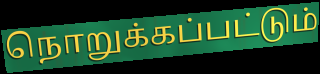
நொறுக்கப்பட்டும்